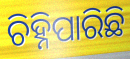
ଚିହ୍ନିପାରିଛି